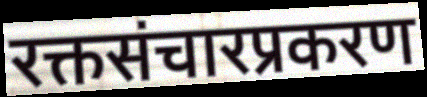
रक्तसंचारप्रकरण